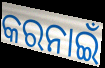
କରନାଇଁ